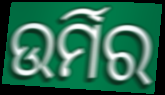
ଉର୍ମିର